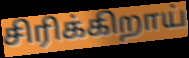
சிரிக்கிறாய்